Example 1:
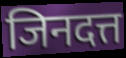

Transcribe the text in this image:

जिनदत्त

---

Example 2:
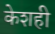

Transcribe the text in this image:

केशही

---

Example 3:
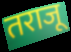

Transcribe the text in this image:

तराजू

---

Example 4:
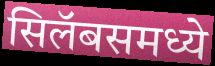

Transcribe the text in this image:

सिलॅबसमध्ये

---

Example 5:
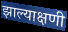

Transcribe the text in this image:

झाल्याक्षणी